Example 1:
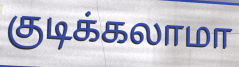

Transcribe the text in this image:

குடிக்கலாமா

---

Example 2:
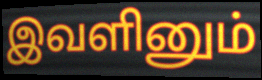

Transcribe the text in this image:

இவளினும்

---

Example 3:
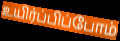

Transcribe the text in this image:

உயிர்ப்பிப்போம்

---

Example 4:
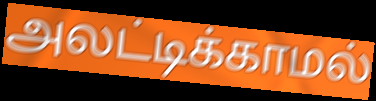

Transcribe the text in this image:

அலட்டிக்காமல்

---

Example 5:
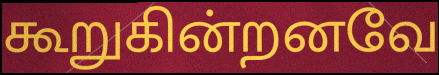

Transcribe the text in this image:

கூறுகின்றனவே